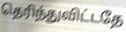
தெரிந்துவிட்டதே